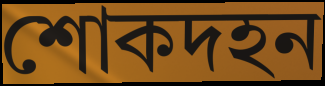
শোকদহন